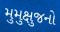
મુમુક્ષુજનો